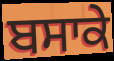
ਬਸਾਕੇ